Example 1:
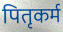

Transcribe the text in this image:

पितृकर्म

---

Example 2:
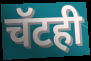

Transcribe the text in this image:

चॅटही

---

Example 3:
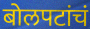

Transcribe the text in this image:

बोलपटांचं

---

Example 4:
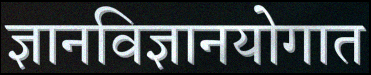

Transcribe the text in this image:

ज्ञानविज्ञानयोगात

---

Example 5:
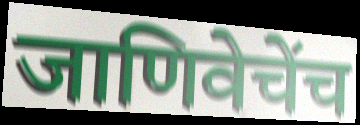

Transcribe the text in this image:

जाणिवेचेंच